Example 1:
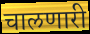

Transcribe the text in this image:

चालणारी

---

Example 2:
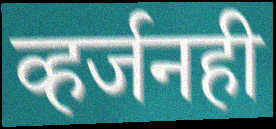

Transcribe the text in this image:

व्हर्जनही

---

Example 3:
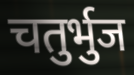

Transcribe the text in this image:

चतुर्भुज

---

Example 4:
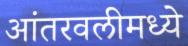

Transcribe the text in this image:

आंतरवलीमध्ये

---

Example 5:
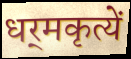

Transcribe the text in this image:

धर्मकृत्यें